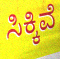
ಸಿಕ್ಕಿವೆ